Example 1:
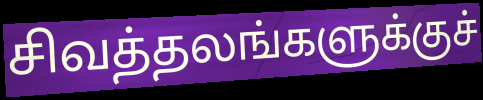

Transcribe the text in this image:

சிவத்தலங்களுக்குச்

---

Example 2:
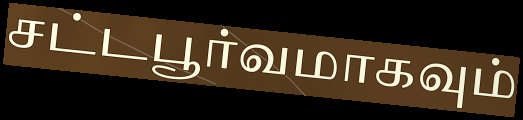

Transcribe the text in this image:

சட்டபூர்வமாகவும்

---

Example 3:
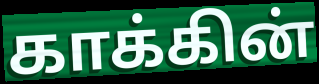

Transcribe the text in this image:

காக்கின்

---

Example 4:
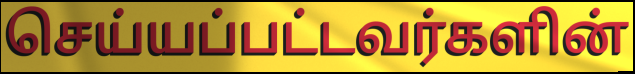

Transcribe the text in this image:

செய்யப்பட்டவர்களின்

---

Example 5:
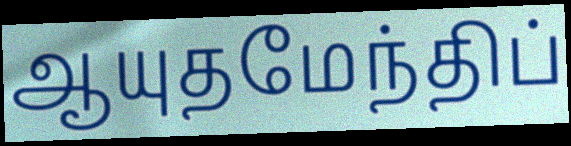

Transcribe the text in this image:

ஆயுதமேந்திப்